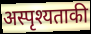
अस्पृश्यताकी